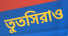
তুতসিরাও